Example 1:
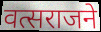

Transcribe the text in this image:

वत्सराजने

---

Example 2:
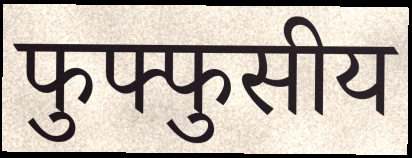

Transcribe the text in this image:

फुफ्फुसीय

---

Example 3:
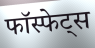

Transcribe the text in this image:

फॉस्फेट्स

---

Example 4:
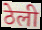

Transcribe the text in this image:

ठेली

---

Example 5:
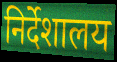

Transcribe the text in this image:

निर्देशालय